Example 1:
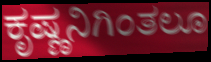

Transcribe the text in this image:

ಕೃಷ್ಣನಿಗಿಂತಲೂ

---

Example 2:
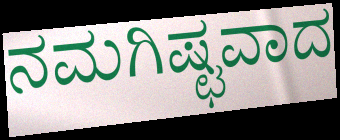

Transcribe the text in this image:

ನಮಗಿಷ್ಟವಾದ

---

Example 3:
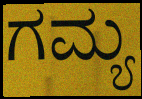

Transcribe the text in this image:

ಗಮ್ಯ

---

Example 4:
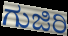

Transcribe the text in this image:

ಗುಜಿರಿ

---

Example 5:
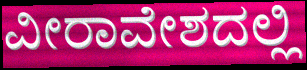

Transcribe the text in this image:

ವೀರಾವೇಶದಲ್ಲಿ